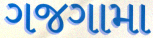
ગજગામા